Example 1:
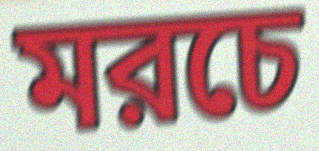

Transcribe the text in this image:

মরচে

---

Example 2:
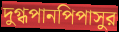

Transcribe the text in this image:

দুগ্ধপানপিপাসুর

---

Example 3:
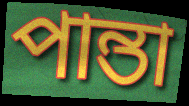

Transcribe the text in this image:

পান্তা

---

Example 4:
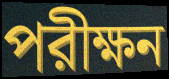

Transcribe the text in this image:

পরীক্ষন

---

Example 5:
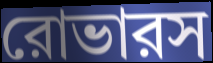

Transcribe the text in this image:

রোভারস